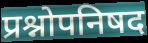
प्रश्नोपनिषद